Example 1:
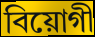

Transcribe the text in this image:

বিয়োগী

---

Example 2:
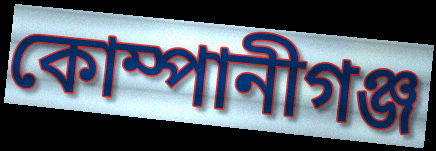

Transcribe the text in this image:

কোম্পানীগঞ্জ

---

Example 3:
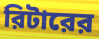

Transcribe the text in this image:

রিটারের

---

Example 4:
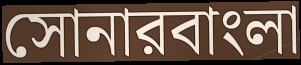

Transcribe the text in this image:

সোনারবাংলা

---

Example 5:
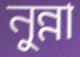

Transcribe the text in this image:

নুন্না